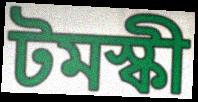
টমস্কী